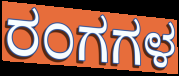
ರಂಗಗಳ